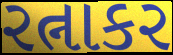
રત્નાકર